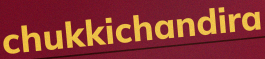
chukkichandira